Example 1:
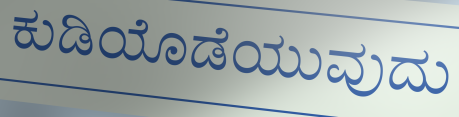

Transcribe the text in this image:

ಕುಡಿಯೊಡೆಯುವುದು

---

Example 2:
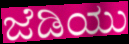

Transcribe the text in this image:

ಜೆಡಿಯು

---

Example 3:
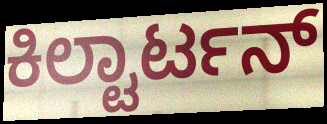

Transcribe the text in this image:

ಕಿಲ್ಟಾರ್ಟನ್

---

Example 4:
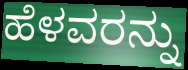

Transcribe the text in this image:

ಹೆಳವರನ್ನು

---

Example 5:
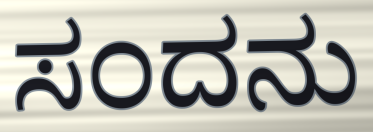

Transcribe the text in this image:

ಸಂದನು